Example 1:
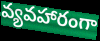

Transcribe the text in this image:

వ్యవహారంగా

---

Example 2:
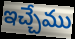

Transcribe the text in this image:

ఇచ్చేము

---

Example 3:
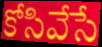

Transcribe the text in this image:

కోసివేసే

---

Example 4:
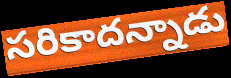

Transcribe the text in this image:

సరికాదన్నాడు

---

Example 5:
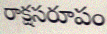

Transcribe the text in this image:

రాక్షసరూపం